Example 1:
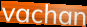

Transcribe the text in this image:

vachan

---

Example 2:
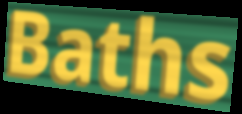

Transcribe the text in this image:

Baths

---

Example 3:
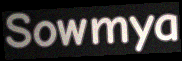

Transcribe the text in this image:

Sowmya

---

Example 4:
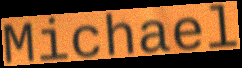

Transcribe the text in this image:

Michael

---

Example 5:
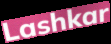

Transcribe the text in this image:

Lashkar